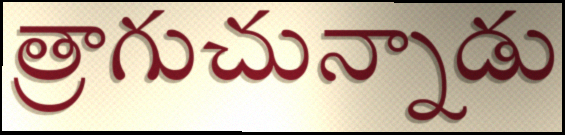
త్రాగుచున్నాడు